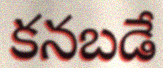
కనబడే